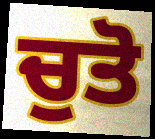
ਚੁਤੋ